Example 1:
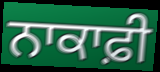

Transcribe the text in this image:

ਨਾਕਾਫ਼ੀ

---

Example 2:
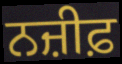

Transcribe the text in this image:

ਨਜ਼ੀਫ਼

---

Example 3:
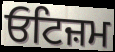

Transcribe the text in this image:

ਓਟਿਜ਼ਮ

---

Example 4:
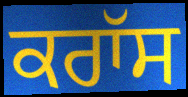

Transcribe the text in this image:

ਕਰਾੱਸ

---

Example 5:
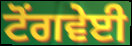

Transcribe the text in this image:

ਟੋਂਗਵੇਈ